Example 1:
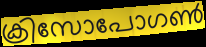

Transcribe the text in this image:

ക്രിസോപോഗൺ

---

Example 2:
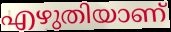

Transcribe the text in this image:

എഴുതിയാണ്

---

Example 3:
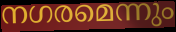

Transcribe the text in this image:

നഗരമെന്നും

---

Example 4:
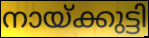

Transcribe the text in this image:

നായ്ക്കുട്ടി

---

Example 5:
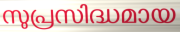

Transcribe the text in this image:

സുപ്രസിദ്ധമായ